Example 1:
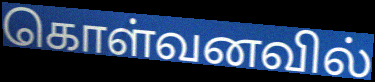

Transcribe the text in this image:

கொள்வனவில்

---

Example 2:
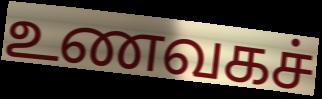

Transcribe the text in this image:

உணவகச்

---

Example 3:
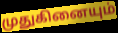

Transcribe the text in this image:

முதுகினையும்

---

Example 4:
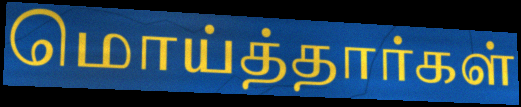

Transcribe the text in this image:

மொய்த்தார்கள்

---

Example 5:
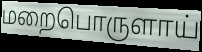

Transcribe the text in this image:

மறைபொருளாய்